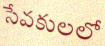
సేవకులలో